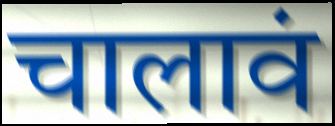
चालावं